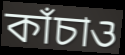
কাঁচাও